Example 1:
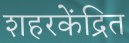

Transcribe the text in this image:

शहरकेंद्रित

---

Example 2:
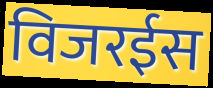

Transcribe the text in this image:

विजरईस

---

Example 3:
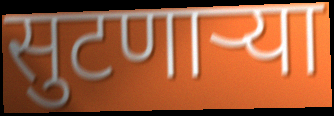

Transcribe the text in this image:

सुटणाऱ्या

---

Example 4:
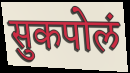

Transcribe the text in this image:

सुकपोलं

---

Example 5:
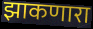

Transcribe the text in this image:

झाकणारा